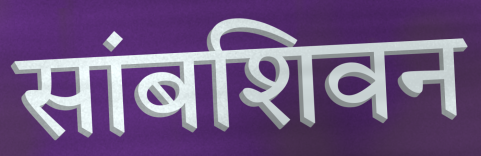
सांबशिवन